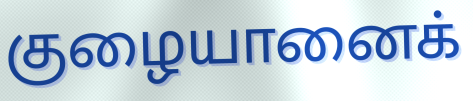
குழையானைக்